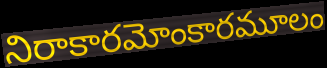
నిరాకారమోంకారమూలం